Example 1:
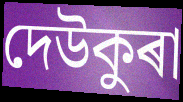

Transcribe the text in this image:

দেউকুৰা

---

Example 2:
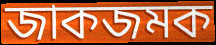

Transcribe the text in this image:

জাকজমক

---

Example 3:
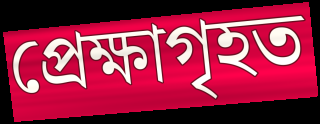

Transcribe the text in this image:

প্ৰেক্ষাগৃহত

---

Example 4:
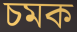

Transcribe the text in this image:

চমক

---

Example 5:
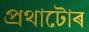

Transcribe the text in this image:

প্ৰথাটোৰ